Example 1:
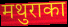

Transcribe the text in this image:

मथुराका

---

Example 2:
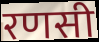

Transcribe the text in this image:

रणसी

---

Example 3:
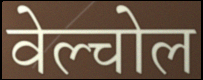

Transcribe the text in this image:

वेल्चोल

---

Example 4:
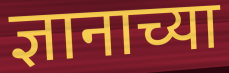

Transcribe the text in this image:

ज्ञानाच्या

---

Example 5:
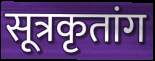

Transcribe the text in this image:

सूत्रकृतांग